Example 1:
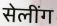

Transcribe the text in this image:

सेलींग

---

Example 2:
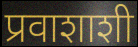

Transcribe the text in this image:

प्रवाशाशी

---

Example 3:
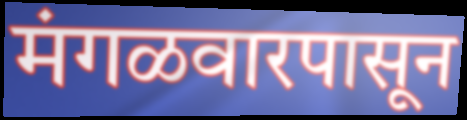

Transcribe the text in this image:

मंगळवारपासून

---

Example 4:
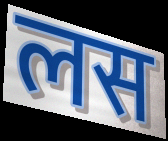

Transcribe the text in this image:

लस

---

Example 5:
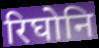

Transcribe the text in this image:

रिघोनि